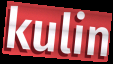
kulin